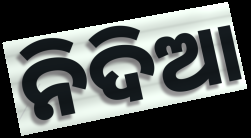
ନିଦିଆ